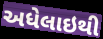
અધેલાઇથી